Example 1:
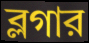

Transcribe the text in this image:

ব্লগার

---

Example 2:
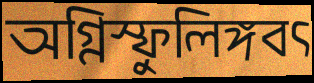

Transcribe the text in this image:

অগ্নিস্ফুলিঙ্গবৎ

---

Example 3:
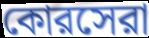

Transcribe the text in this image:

কোরসেরা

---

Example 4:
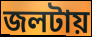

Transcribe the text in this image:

জলটায়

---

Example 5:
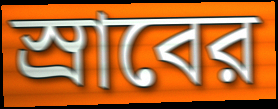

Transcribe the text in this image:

স্রাবের